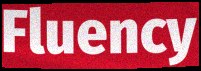
Fluency